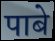
पाबे